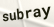
subray